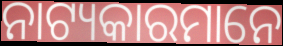
ନାଟ୍ୟକାରମାନେ